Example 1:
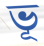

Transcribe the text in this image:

ভূ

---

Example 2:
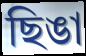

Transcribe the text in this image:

ছিঙা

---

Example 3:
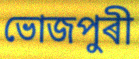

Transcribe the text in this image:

ভোজপুৰী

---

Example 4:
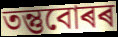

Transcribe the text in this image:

তন্তুবোৰৰ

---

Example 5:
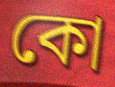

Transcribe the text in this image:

কো